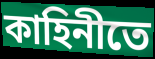
কাহিনীতে